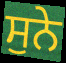
ਸੁਨੇ